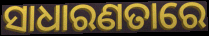
ସାଧାରଣତାରେ